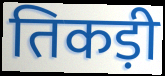
तिकड़ी